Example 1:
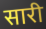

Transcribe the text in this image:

सारी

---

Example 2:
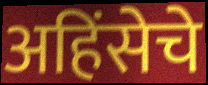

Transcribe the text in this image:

अहिंसेचे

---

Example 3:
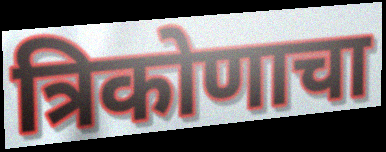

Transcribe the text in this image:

त्रिकोणाचा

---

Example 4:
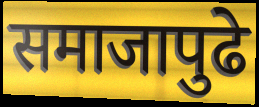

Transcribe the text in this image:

समाजापुढे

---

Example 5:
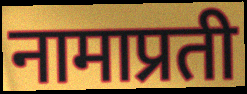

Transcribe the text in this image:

नामाप्रती